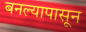
बनल्यापासून